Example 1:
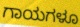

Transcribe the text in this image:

ಗಾಯಗಳೂ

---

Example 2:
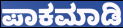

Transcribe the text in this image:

ಪಾಕಮಾಡಿ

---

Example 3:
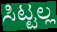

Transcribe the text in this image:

ಸಿಟ್ಟಲ್ಲ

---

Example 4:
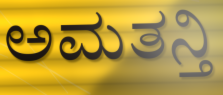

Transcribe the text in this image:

ಅಮತನ್ತಿ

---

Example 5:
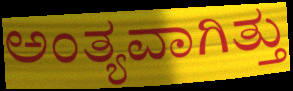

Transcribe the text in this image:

ಅಂತ್ಯವಾಗಿತ್ತು